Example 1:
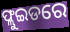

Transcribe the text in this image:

ଫ୍ଲୁଇଡରେ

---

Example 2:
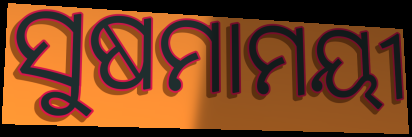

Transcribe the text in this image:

ସୁଷମାମୟୀ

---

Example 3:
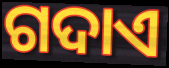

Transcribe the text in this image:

ଗଦାଏ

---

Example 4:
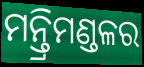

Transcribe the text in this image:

ମନ୍ତ୍ରିମଣ୍ଡଳର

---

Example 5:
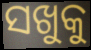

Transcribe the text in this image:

ସଖୁକୁ